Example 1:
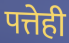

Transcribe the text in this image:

पत्तेही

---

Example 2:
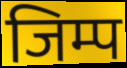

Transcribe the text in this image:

जिम्प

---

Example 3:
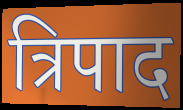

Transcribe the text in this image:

त्रिपाद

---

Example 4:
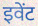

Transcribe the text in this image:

इवेंट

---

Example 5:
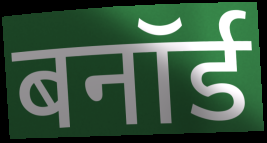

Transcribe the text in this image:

बनॉर्ड